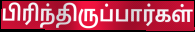
பிரிந்திருப்பார்கள்